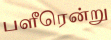
பளீரென்று